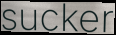
sucker